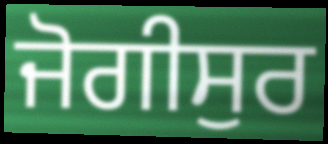
ਜੋਗੀਸੁਰ